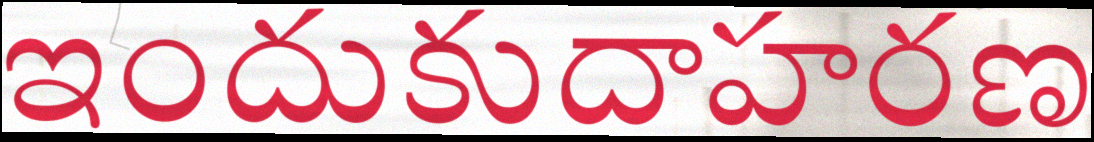
ఇందుకుదాహరణ